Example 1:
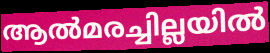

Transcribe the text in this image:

ആൽമരച്ചില്ലയിൽ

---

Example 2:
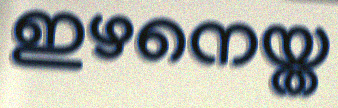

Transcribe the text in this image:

ഇഴനെയ്ത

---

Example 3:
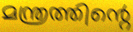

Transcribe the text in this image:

മന്ത്രത്തിന്റെ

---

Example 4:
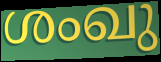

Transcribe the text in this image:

ശംഖു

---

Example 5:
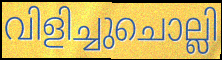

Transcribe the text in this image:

വിളിച്ചുചൊല്ലി